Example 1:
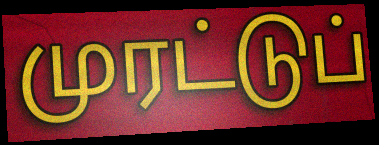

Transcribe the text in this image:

முரட்டுப்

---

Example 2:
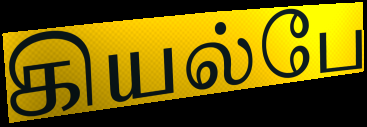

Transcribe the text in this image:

கியல்பே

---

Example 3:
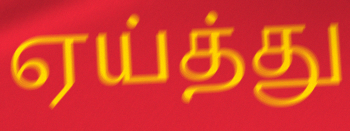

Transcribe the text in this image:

ஏய்த்து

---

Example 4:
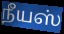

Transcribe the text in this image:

நீயஸ்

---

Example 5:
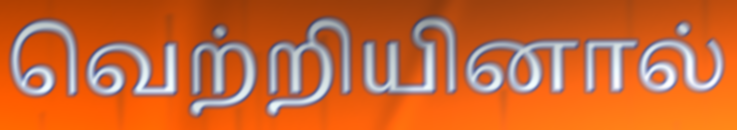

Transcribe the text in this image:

வெற்றியினால்